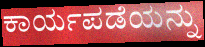
ಕಾರ್ಯಪಡೆಯನ್ನು